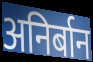
अनिर्बान